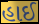
હાઈ